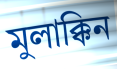
মুলাক্কিন